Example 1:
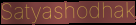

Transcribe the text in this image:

Satyashodhak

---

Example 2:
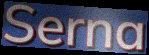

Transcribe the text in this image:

Serna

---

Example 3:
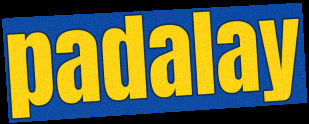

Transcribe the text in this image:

padalay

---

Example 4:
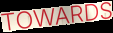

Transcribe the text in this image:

TOWARDS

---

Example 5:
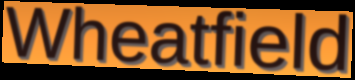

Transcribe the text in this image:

Wheatfield